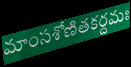
మాంసశోణితకర్దమః